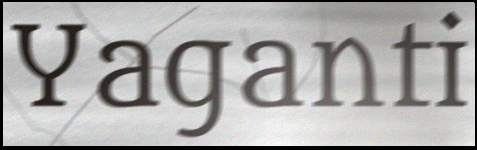
Yaganti